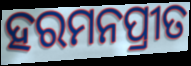
ହରମନପ୍ରୀତ